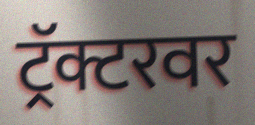
ट्रॅक्टरवर